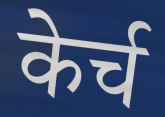
केर्च